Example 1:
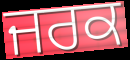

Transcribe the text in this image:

ਜਰਕ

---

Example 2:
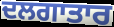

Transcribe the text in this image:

ਦਲਗਾਤਾਰ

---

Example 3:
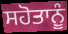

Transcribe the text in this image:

ਸਹੋਤਾਨੂੰ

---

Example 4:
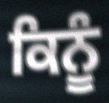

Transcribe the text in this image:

ਕਿਨੂੰ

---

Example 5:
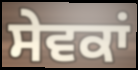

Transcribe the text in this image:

ਸੇਵਕਾਂ